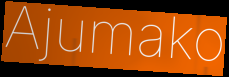
Ajumako